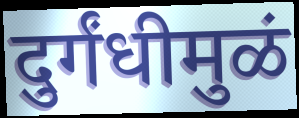
दुर्गंधीमुळं